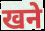
खने